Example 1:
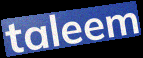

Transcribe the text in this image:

taleem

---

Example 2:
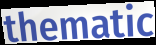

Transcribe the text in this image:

thematic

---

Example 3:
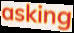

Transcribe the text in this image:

asking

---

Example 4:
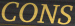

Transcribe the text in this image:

CONS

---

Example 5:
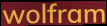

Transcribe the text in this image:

wolfram